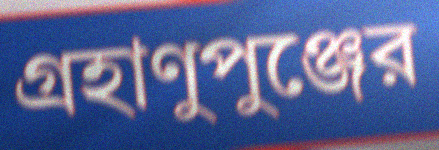
গ্রহাণুপুঞ্জের